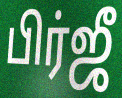
பிர்ஜீ